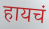
हायचं